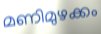
മണിമുഴക്കം